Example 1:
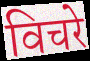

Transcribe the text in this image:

विचरे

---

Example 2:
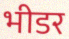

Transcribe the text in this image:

भीडर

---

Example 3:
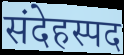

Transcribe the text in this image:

संदेहस्पद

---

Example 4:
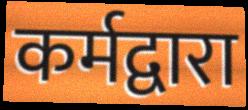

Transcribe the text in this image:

कर्मद्वारा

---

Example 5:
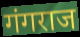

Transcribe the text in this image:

गंगराज